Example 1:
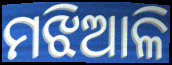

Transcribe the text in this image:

ମଝିଆଳି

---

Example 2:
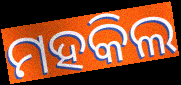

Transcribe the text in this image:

ମହକିଲ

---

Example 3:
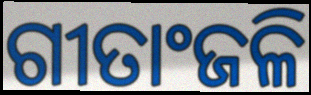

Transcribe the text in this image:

ଗୀତାଂଜଳି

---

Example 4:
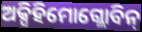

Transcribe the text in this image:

ଅକ୍ସିହିମୋଗ୍ଲୋବିନ୍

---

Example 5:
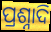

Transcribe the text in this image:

ପ୍ରଶ୍ନାଦି